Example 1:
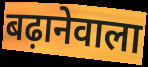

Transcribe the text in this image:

बढ़ानेवाला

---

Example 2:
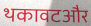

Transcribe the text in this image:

थकावटऔर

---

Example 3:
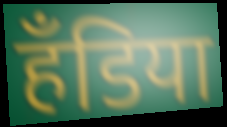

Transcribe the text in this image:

हँडिया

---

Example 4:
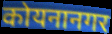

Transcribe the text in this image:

कोयनानगर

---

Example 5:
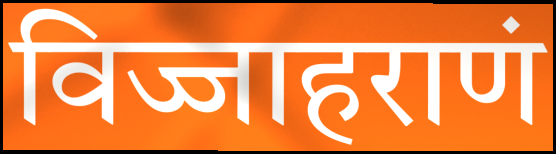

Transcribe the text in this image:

विज्जाहराणं